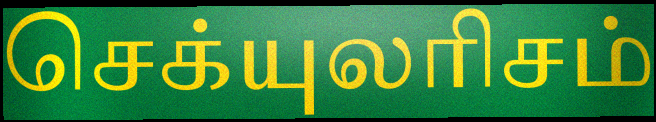
செக்யுலரிசம்